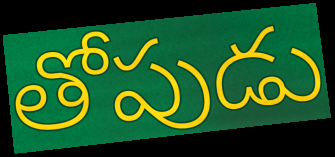
తోపుడు